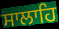
ਸਾਲਾਹਿ